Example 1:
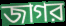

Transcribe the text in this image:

জাগর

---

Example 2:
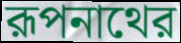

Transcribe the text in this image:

রূপনাথের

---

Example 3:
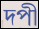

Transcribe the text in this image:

দপী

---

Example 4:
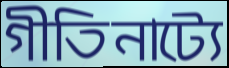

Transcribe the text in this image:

গীতিনাট্যে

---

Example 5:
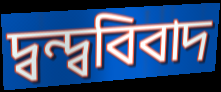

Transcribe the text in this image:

দ্বন্দ্ববিবাদ